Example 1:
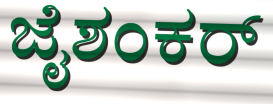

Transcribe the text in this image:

ಜೈಶಂಕರ್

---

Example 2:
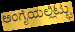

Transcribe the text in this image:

ಅಂಗೈಯಲ್ಲಿಟ್ಟು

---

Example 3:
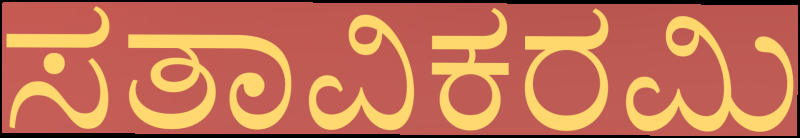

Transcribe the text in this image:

ಸತಾವಿಕರಮಿ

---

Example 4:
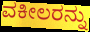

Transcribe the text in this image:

ವಕೀಲರನ್ನು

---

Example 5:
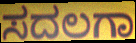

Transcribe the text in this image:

ಸದಲಗಾ